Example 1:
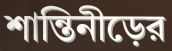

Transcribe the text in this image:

শান্তিনীড়ের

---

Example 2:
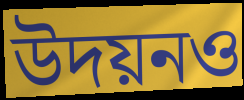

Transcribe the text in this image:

উদয়নও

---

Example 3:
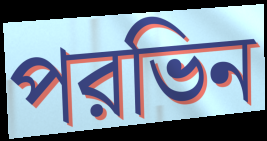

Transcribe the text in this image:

পরভিন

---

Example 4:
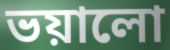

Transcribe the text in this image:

ভয়ালো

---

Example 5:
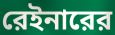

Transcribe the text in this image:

রেইনারের